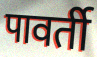
पावर्ती